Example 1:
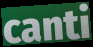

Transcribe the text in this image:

canti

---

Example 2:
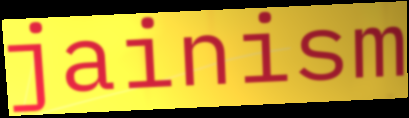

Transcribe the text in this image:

jainism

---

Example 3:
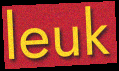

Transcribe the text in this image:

leuk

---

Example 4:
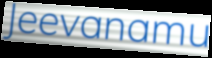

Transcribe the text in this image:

Jeevanamu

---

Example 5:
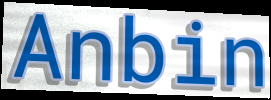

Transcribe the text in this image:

Anbin